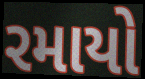
રમાયો